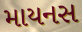
માયનસ